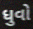
ધુવો